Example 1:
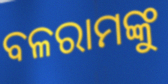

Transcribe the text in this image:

ବଳରାମଙ୍କୁ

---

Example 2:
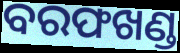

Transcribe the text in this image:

ବରଫଖଣ୍ଡ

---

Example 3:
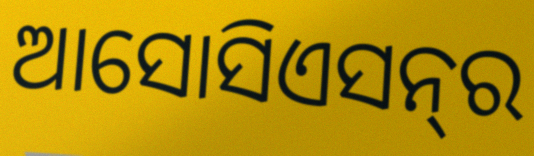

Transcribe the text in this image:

ଆସୋସିଏସନ୍‍ର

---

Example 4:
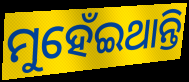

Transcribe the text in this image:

ମୁହେଁଇଥାନ୍ତି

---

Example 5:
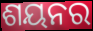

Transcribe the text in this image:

ଶୟନର